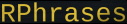
RPhrases